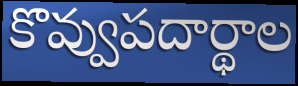
కొవ్వుపదార్థాల